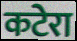
कटेरा